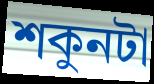
শকুনটা